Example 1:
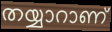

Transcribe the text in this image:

തയ്യാറാണ്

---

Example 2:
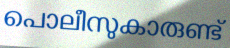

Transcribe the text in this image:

പൊലീസുകാരുണ്ട്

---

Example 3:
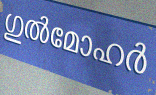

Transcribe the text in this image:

ഗുൽമോഹർ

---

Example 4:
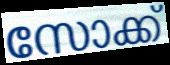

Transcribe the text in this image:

സോക്ക്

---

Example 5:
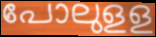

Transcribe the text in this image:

പോലുളള